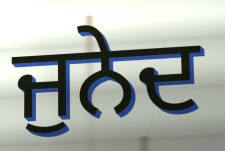
ਜੁਨੇਦ